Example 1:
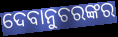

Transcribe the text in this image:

ଦେବାନୁଚରଙ୍କର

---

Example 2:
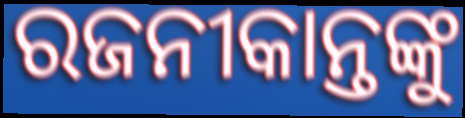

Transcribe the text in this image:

ରଜନୀକାନ୍ତଙ୍କୁ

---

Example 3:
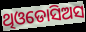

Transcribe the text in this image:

ଥିଓଡୋସିଅସ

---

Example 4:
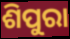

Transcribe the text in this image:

ଶିପୁରା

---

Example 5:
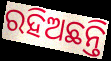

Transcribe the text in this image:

ରହିଅଛନ୍ତି